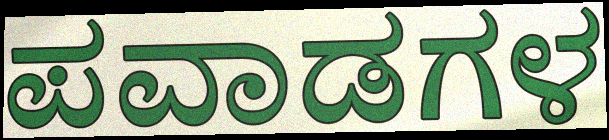
ಪವಾಡಗಳ